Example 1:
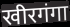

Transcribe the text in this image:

खीरगंगा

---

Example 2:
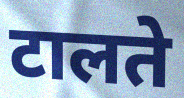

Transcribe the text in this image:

टालते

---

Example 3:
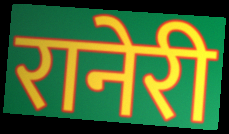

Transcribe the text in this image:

रानेरी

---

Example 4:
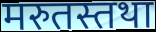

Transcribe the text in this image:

मरुतस्तथा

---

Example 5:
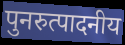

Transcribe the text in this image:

पुनरुत्पादनीय